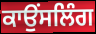
ਕਾਉੰਸਲਿੰਗ